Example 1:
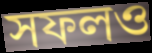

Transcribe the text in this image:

সফলও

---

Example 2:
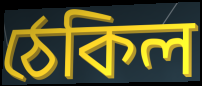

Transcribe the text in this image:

ঠেকিল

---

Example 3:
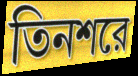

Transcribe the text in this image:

তিনশরে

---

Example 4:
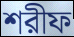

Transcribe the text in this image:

শরীফ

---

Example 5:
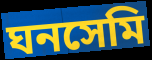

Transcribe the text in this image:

ঘনসেমি